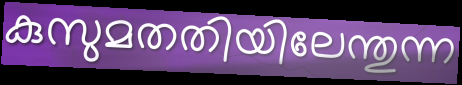
കുസുമതതിയിലേന്തുന്ന